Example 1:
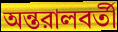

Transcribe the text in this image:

অন্তরালবর্তী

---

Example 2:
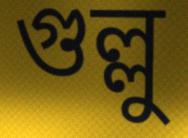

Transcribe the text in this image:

গুল্লু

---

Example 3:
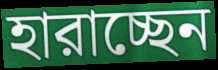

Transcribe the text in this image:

হারাচ্ছেন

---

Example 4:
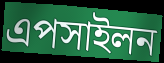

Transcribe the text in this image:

এপসাইলন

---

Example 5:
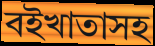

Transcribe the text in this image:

বইখাতাসহ